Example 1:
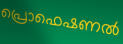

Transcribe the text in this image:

പ്രൊഫെഷണൽ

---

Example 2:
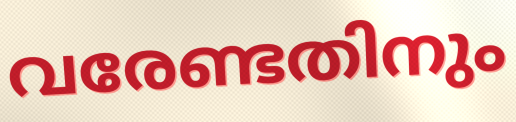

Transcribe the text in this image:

വരേണ്ടതിനും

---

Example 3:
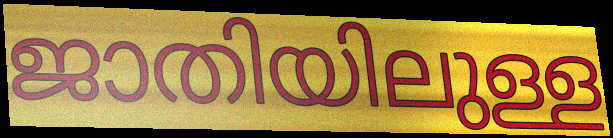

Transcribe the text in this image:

ജാതിയിലുള്ള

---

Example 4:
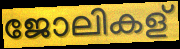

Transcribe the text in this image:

ജോലികള്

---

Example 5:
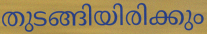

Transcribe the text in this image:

തുടങ്ങിയിരിക്കും